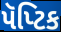
પૅપ્ટિક